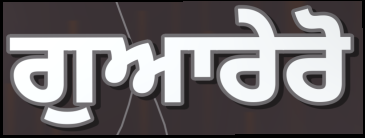
ਗੁਆਰੇਰੋ